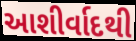
આશીર્વાદથી